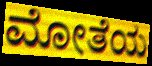
ಮೋತೆಯ